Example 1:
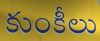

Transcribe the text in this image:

కుంకీలు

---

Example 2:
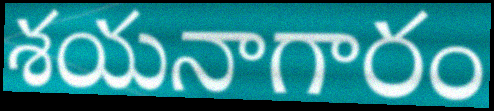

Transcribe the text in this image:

శయనాగారం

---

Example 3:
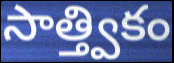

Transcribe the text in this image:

సాత్త్వికం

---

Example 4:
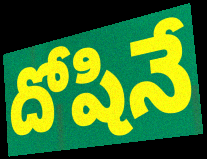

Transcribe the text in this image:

దోషినే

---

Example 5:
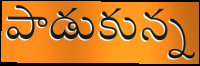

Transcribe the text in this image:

పాడుకున్న